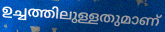
ഉച്ചത്തിലുള്ളതുമാണ്